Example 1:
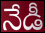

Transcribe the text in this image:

నేడీ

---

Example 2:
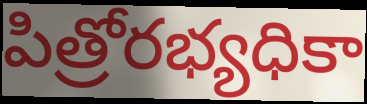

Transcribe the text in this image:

పిత్రోరభ్యధికా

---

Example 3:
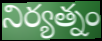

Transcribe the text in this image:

నిర్యత్నం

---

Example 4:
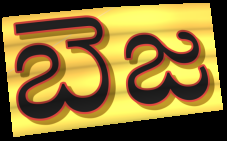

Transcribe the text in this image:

బెజ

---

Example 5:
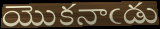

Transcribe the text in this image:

యొకనాఁడు